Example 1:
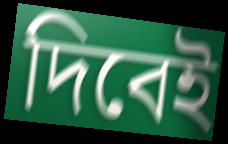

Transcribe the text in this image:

দিবেই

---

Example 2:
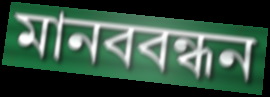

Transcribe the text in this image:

মানববন্ধন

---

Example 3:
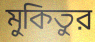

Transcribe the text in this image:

মুকিতুর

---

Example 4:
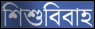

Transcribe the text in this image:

শিশুবিবাহ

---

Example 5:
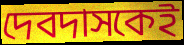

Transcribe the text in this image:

দেবদাসকেই